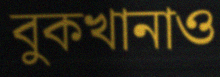
বুকখানাও